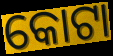
କୋଟା